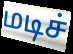
மடிச்